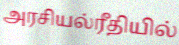
அரசியல்ரீதியில்